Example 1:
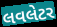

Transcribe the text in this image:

લવલેટર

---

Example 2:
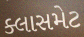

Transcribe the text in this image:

ક્લાસમેટ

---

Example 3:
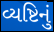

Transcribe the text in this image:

વ્યષ્ટિનું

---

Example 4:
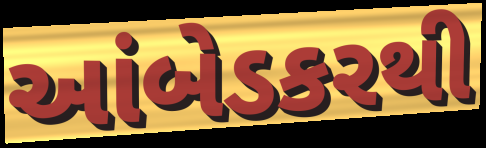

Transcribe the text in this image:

આંબેડકરથી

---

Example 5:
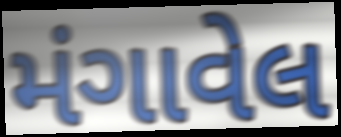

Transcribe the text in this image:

મંગાવેલ